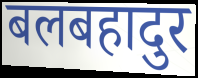
बलबहादुर